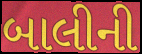
બાલીની